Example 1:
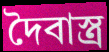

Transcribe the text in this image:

দৈবাস্ত্র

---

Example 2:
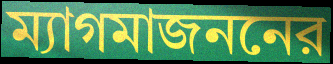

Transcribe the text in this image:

ম্যাগমাজননের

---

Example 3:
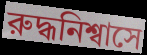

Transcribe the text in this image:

রুদ্ধনিশ্বাসে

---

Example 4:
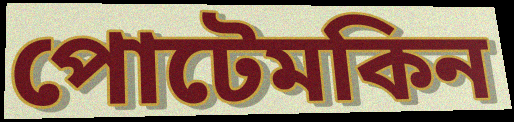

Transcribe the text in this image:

পোটেমকিন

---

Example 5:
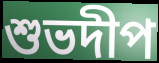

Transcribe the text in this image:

শুভদীপ